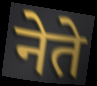
नेते